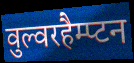
वुल्वरहैम्प्टन